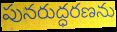
పునరుద్ధరణను